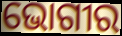
ଭୋଗୀର